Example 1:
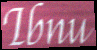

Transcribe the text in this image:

Ibnu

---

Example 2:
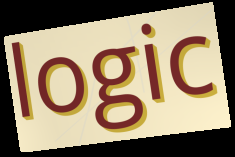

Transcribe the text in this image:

logic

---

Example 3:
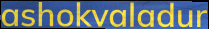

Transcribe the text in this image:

ashokvaladur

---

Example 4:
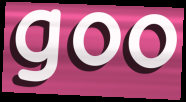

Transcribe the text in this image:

goo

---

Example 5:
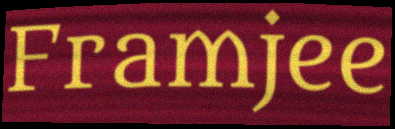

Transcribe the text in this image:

Framjee